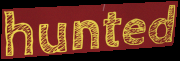
hunted